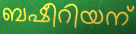
ബഷീറിയന്